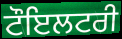
ਟੌਇਲਟਰੀ